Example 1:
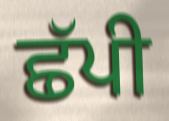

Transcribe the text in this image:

ਛੱਪੀ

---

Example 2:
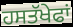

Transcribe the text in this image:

ਹਸਤੱਖੇਫਾਂ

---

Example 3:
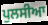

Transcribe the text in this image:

ਪੁਲਸੀਆ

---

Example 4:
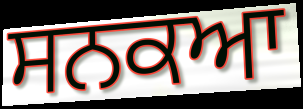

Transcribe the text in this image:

ਸਨਕਆ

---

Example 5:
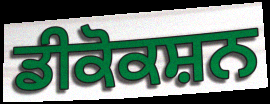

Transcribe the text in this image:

ਡੀਕੋਕਸ਼ਨ